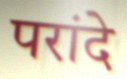
परांदे